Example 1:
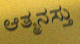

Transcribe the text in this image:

ಆತ್ಮನಸ್ತು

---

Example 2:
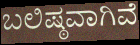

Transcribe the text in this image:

ಬಲಿಷ್ಠವಾಗಿವೆ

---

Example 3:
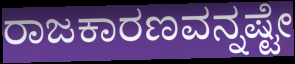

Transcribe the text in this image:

ರಾಜಕಾರಣವನ್ನಷ್ಟೇ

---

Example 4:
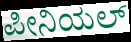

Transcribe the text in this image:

ಪೀನಿಯಲ್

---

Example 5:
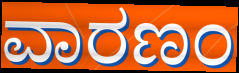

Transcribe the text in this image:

ವಾರಣಂ